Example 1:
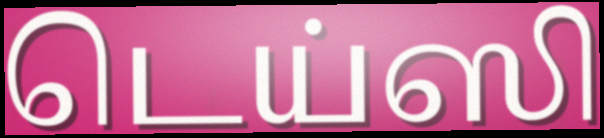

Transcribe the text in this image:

டெய்ஸி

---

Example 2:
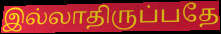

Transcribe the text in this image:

இல்லாதிருப்பதே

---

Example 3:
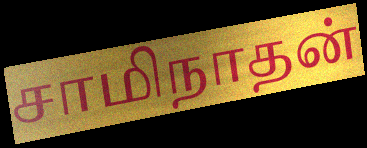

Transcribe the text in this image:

சாமிநாதன்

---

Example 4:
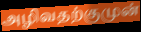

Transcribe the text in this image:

அழிவதற்குமுன்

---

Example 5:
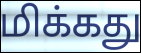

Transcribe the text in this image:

மிக்கது